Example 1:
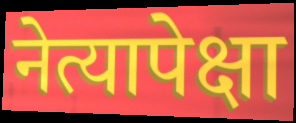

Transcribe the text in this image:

नेत्यापेक्षा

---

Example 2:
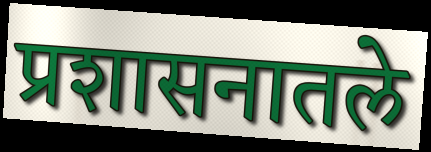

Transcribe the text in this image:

प्रशासनातले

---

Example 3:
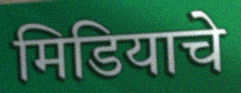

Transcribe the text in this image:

मिडियाचे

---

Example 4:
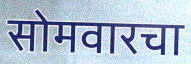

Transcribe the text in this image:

सोमवारचा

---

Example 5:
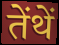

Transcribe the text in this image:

तेंथें